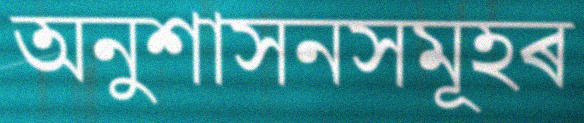
অনুশাসনসমূহৰ